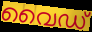
വൈഡ്